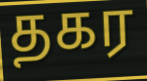
தகர